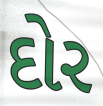
દોર